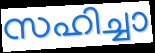
സഹിച്ചാ